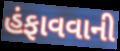
હંફાવવાની